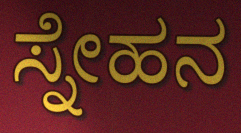
ಸ್ನೇಹನ